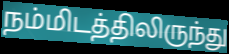
நம்மிடத்திலிருந்து